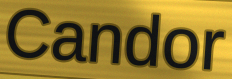
Candor